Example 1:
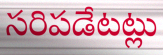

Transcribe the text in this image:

సరిపడేటట్లు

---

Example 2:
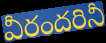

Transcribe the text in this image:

వీరందరినీ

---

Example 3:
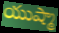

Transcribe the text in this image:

యుష్మా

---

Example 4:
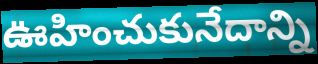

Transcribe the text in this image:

ఊహించుకునేదాన్ని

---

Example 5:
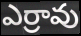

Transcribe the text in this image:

ఎర్రావు